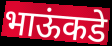
भाऊंकडे